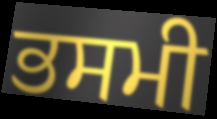
ਭਸਮੀ